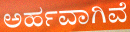
ಅರ್ಹವಾಗಿವೆ